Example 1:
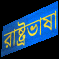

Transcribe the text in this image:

রাষ্ট্রভাষা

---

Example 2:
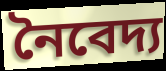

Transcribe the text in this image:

নৈবেদ্য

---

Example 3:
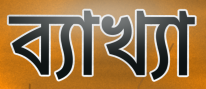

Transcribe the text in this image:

ব্যাখ্যা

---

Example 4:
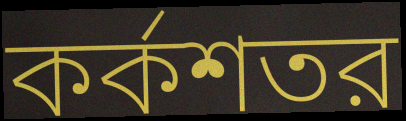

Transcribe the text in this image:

কর্কশতর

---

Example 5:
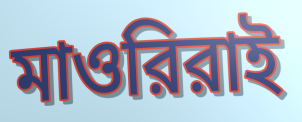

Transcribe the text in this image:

মাওরিরাই